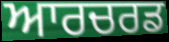
ਆਰਚਰਡ